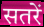
सतरें